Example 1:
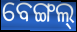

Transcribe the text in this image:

ବେଙ୍ଗଲ୍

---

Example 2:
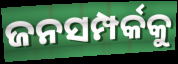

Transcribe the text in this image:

ଜନସମ୍ପର୍କକୁ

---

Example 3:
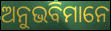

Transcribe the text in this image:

ଅନୁଭବିମାନେ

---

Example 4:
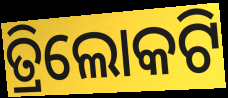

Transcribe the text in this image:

ତ୍ରିଲୋକଟି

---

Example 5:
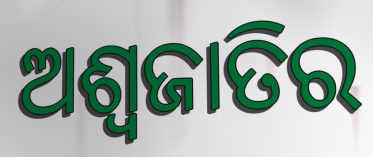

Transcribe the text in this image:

ଅଶ୍ୱଜାତିର